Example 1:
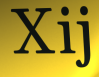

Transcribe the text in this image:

Xij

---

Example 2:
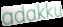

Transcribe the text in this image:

adakku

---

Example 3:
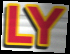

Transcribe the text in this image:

LY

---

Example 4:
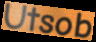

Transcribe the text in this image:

Utsob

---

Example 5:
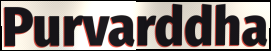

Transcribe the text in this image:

Purvarddha